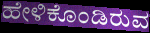
ಹೇಳಿಕೊಂಡಿರುವ